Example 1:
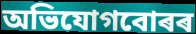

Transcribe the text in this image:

অভিযোগবোৰৰ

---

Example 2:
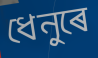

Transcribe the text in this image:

ধেনুৰে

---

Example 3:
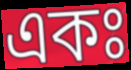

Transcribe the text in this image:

একঃ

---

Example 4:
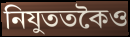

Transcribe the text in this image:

নিযুততকৈও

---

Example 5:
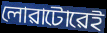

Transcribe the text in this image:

লোৱাটোৱেই